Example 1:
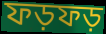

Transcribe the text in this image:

ফড়ফড়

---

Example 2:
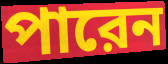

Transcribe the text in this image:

পারেন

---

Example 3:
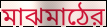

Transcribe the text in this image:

মাঝমাঠের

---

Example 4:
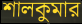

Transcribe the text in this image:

শালকুমার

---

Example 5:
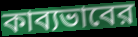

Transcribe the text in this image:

কাব্যভাবের